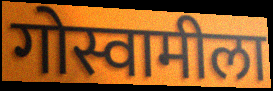
गोस्वामीला